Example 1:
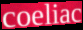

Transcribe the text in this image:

coeliac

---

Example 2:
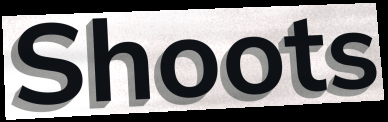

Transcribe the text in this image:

Shoots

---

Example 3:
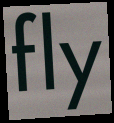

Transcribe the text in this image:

fly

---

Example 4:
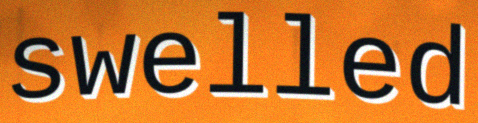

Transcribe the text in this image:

swelled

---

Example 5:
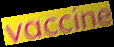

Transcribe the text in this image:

vaccine